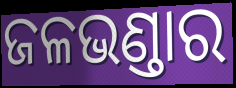
ଜଳଭଣ୍ଡାର